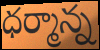
ధర్మాన్న